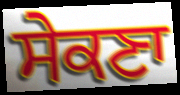
ਸੇਕਣਾ